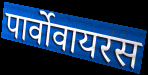
पार्वोवायरस